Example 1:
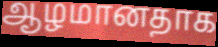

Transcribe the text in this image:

ஆழமானதாக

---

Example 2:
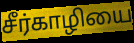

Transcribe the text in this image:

சீர்காழியை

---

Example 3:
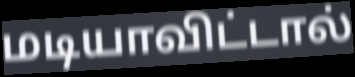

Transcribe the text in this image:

மடியாவிட்டால்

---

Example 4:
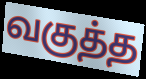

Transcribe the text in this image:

வகுத்த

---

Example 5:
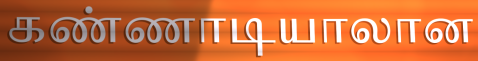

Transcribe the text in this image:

கண்ணாடியாலான